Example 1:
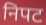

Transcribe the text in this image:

निपट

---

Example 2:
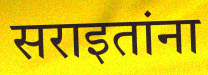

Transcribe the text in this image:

सराइतांना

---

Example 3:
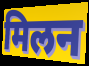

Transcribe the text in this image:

मिलन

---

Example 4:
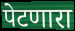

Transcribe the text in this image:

पेटणारा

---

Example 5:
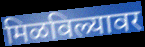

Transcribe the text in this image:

मिळविल्यावर